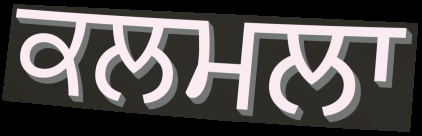
ਕਲਮਲਾ